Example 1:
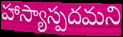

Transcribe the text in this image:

హాస్యాస్పదమని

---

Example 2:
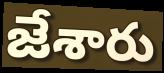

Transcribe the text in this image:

జేశారు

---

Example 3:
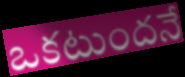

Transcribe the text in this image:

ఒకటుందనే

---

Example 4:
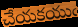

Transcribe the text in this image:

చేయకయుఁ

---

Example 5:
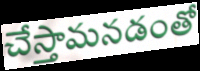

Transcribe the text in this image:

చేస్తామనడంతో